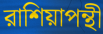
রাশিয়াপন্থী